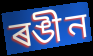
ৰঙীন